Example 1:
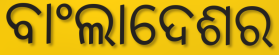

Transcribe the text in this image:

ବାଂଲାଦେଶର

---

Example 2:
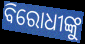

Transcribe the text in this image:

ବିରୋଧୀଙ୍କୁ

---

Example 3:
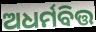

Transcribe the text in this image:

ଅଧର୍ମବିତ୍ତ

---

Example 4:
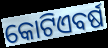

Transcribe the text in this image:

କୋଟିଏବର୍ଷ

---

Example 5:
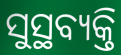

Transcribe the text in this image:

ସୁସ୍ଥବ୍ୟକ୍ତି